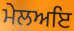
ਮੇਲਅਇ